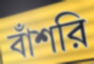
বাঁশরি